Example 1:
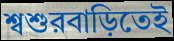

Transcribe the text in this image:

শ্বশুরবাড়িতেই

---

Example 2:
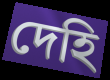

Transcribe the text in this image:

দেহি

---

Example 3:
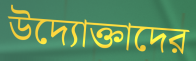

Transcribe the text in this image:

উদ্যোক্তাদের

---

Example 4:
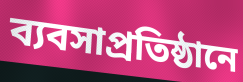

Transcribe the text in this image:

ব্যবসাপ্রতিষ্ঠানে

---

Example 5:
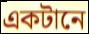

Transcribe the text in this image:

একটানে